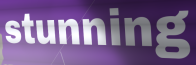
stunning